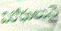
విరోధులునై